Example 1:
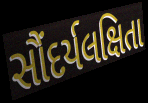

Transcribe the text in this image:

સૌંદર્યલક્ષિતા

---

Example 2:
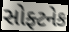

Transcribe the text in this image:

સોફ્ટનેક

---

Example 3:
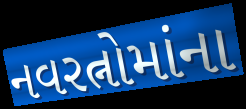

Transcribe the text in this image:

નવરત્નોમાંના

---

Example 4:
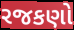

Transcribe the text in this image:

રજકણો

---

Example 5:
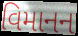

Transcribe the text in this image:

વિમાનન